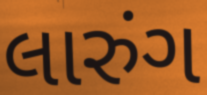
લારુંગ